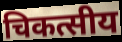
चिकत्सीय